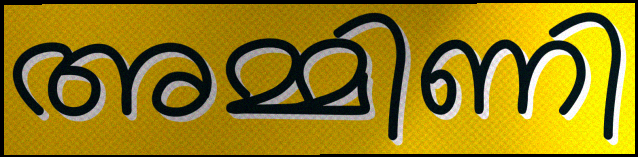
അമ്മിണി